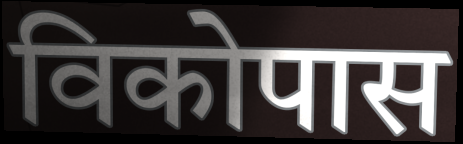
विकोपास